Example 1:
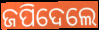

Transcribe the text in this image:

ଜପିଦେଲେ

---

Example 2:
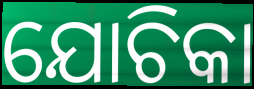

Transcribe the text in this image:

ଯୋଚିକା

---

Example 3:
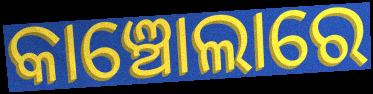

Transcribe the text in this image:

କାଞ୍ଚୋଲାରେ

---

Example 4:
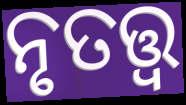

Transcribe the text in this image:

ନୃତତ୍ତ୍ଵ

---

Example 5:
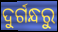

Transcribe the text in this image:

ଦୁର୍ଗନ୍ଧରୁ